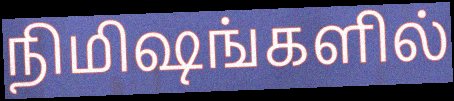
நிமிஷங்களில்